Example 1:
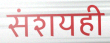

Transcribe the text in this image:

संशयही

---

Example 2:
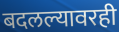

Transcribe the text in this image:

बदलल्यावरही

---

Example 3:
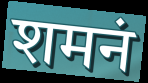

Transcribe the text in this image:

शमनं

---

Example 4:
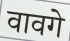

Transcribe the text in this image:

वावगे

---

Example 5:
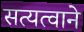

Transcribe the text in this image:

सत्यत्वाने